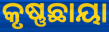
କୃଷ୍ଣଛାୟା